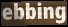
ebbing